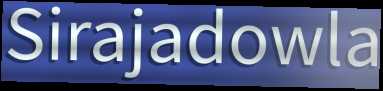
Sirajadowla